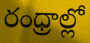
రంధ్రాల్లో